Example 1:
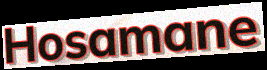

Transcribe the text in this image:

Hosamane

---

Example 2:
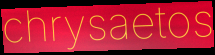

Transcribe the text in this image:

chrysaetos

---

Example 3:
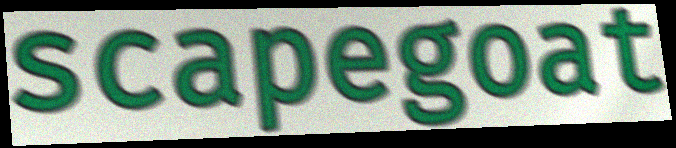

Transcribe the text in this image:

scapegoat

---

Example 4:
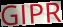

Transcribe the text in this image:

GIPR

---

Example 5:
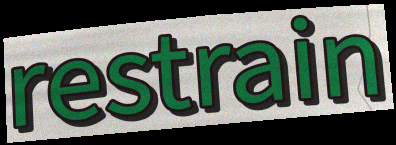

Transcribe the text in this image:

restrain